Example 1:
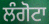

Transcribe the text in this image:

ਲੰਗੋਟਾ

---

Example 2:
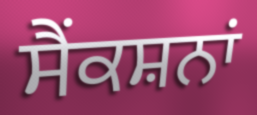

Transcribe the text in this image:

ਸੈਂਕਸ਼ਨਾਂ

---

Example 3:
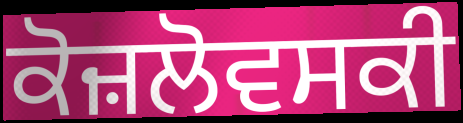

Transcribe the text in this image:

ਕੋਜ਼ਲੋਵਸਕੀ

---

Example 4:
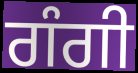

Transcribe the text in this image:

ਗੰਗੀ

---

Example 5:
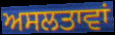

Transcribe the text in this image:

ਅਸਲਤਾਵਾਂ